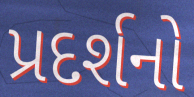
પ્રદર્શનો